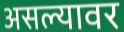
असल्यावर